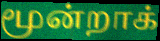
மூன்றாக்